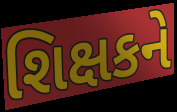
શિક્ષકને